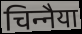
चिन्नैया